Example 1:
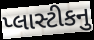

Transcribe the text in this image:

પ્લાસ્ટીકનુ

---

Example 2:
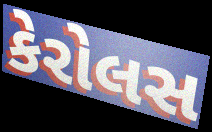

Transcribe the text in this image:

કેરોલસ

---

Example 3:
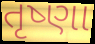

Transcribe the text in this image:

તૃષ્ણા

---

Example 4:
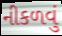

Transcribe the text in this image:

નીકળવું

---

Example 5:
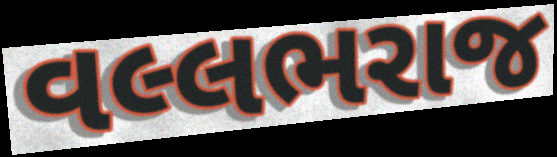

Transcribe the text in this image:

વલ્લભરાજ